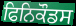
ਫਿਨਿਕੌਡਸ